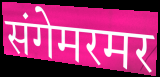
संगेमरमर